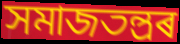
সমাজতন্ত্ৰৰ